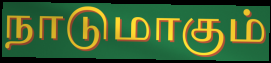
நாடுமாகும்